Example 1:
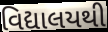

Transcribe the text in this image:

વિદ્યાલયથી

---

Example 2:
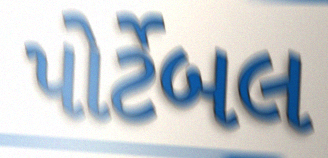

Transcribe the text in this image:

પોર્ટેબલ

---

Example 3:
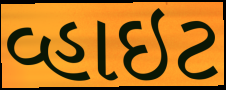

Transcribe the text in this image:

વ્હાઇટ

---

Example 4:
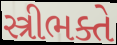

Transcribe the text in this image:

સ્ત્રીભક્તે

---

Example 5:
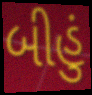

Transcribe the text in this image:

બીહું